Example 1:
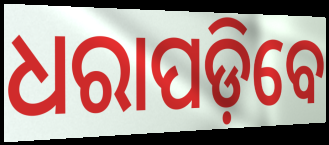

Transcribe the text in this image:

ଧରାପଡ଼ିବେ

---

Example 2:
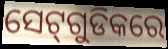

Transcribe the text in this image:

ସେଟ୍‌ଗୁଡିକରେ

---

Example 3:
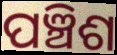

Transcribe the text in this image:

ପଞ୍ଚିଶ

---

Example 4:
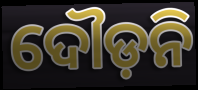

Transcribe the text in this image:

ଦୌଡ଼ନି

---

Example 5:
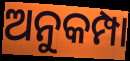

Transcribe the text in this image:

ଅନୁକମ୍ପା